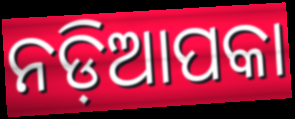
ନଡ଼ିଆପକା